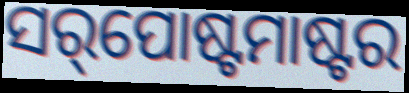
ସର୍‌ପୋଷ୍ଟମାଷ୍ଟର